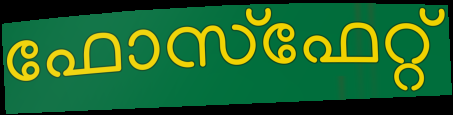
ഫോസ്ഫേറ്റ്